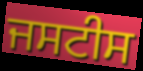
ਜਸਟੀਸ